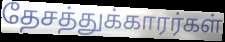
தேசத்துக்காரர்கள்